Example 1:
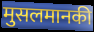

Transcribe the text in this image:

मुसलमानकी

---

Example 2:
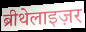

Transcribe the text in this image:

ब्रीथेलाइज़र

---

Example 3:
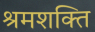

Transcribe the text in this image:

श्रमशक्ति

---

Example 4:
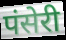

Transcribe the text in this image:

पंसेरी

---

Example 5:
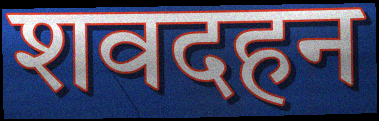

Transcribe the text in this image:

शवदहन